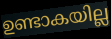
ഉണ്ടാകയില്ല